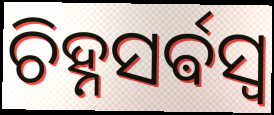
ଚିହ୍ନସର୍ଵସ୍ଵ